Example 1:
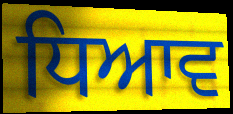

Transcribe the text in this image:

ਧਿਆਵ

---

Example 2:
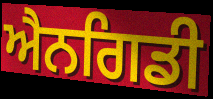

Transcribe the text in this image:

ਐਨਗਿਡੀ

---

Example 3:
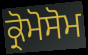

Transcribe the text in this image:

ਕ੍ਰੋਮੋਸੋਮ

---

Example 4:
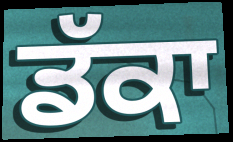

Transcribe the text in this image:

ਡੱਕਾ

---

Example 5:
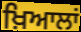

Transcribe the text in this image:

ਖ਼ਿਆਲਾਂ